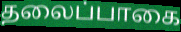
தலைப்பாகை